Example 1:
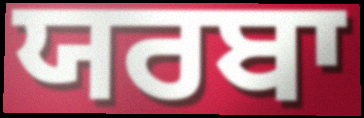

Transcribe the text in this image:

ਯਰਬਾ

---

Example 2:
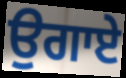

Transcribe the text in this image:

ਉਗਾਏ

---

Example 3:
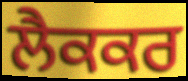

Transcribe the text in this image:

ਲੈਕਕਰ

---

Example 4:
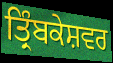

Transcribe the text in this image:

ਤ੍ਰਿੰਬਕੇਸ਼ਵਰ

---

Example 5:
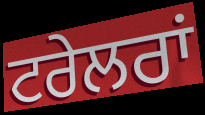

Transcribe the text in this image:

ਟਰੇਲਰਾਂ